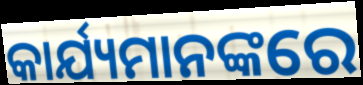
କାର୍ଯ୍ୟମାନଙ୍କରେ